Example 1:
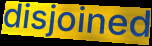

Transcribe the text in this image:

disjoined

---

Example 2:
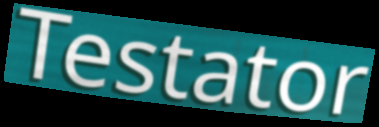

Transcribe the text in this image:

Testator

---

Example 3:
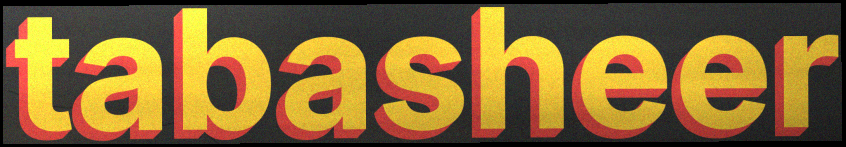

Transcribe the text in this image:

tabasheer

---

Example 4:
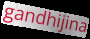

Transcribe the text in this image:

gandhijina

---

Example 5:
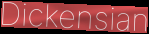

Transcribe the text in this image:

Dickensian